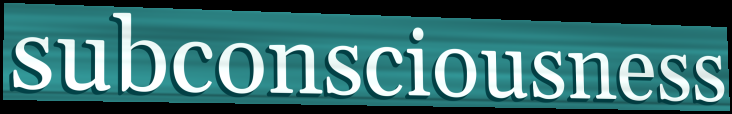
subconsciousness